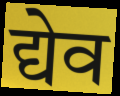
द्येव